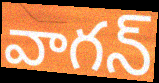
వాగన్